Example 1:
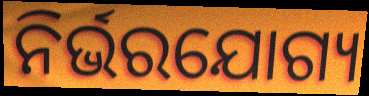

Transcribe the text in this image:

ନିର୍ଭରଯୋଗ୍ୟ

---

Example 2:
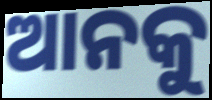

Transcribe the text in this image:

ଆନକୁ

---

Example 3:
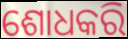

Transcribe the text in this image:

ଶୋଧକରି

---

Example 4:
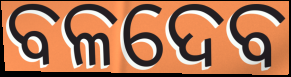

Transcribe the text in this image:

ବଳଦେବ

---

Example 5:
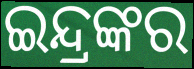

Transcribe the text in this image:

ଇନ୍ଦ୍ରଙ୍କର